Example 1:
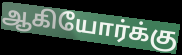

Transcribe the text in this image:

ஆகியோர்க்கு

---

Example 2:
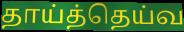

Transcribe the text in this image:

தாய்த்தெய்வ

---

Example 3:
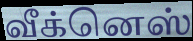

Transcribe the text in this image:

வீக்னெஸ்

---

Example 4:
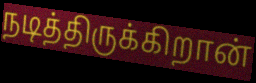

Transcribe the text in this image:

நடித்திருக்கிறான்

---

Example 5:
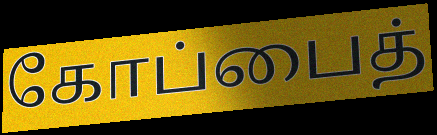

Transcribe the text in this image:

கோப்பைத்